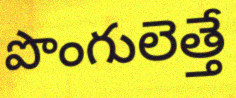
పొంగులెత్తే